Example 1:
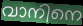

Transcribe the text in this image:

വാനിനെ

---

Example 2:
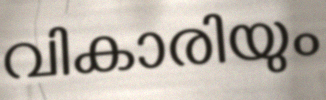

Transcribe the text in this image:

വികാരിയും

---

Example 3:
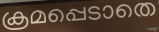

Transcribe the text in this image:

ക്രമപ്പെടാതെ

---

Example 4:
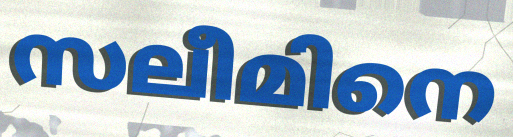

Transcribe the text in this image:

സലീമിനെ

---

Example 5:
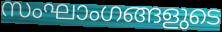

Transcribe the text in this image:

സംഘാംഗങ്ങളുടെ